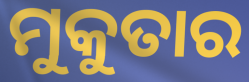
ମୁକୁତାର